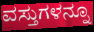
ವಸ್ತುಗಳನ್ನೂ